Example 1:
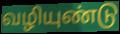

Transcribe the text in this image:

வழியுண்டு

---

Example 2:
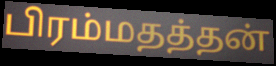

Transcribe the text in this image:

பிரம்மதத்தன்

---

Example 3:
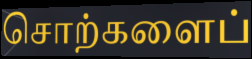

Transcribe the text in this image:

சொற்களைப்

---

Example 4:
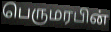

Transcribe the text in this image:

பெருமரபின்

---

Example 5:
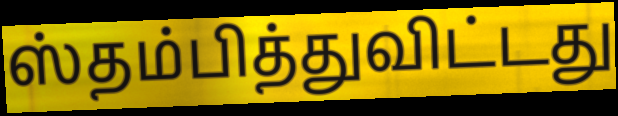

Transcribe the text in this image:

ஸ்தம்பித்துவிட்டது